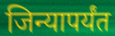
जिन्यापर्यंत